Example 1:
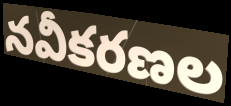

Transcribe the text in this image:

నవీకరణల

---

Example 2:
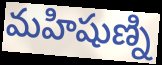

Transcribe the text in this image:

మహిషుణ్ని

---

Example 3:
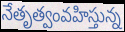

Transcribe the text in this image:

నేతృత్వంవహిస్తున్న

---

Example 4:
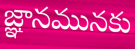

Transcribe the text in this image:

జ్ఞానమునకు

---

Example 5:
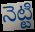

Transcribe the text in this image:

నెట్టి